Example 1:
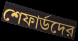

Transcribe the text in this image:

শেফার্ডদের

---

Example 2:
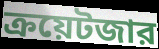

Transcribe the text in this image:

ক্রয়েটজার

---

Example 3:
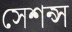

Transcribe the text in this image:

সেশন্স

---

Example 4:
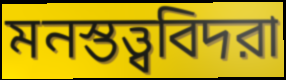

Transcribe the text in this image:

মনস্তত্ত্ববিদরা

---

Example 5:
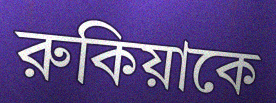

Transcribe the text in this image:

রুকিয়াকে